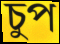
চুপ